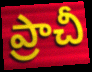
ప్రాచీ